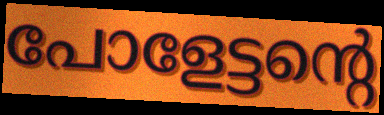
പോളേട്ടന്റെ